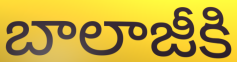
బాలాజీకి